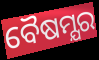
ବୈଷମ୍ଯର